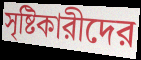
সৃষ্টিকারীদের